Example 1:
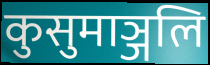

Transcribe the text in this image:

कुसुमाञ्जलि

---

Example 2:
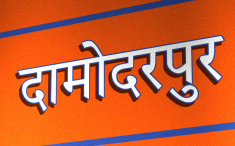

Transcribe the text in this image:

दामोदरपुर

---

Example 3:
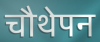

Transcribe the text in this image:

चौथेपन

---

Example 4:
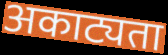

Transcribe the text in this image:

अकाट्यता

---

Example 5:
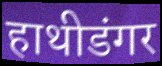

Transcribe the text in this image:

हाथीडंगर